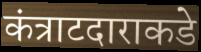
कंत्राटदाराकडे